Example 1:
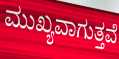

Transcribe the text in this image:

ಮುಖ್ಯವಾಗುತ್ತವೆ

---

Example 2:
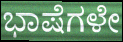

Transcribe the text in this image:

ಭಾಷೆಗಳೇ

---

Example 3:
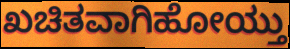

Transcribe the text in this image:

ಖಚಿತವಾಗಿಹೋಯ್ತು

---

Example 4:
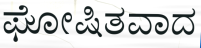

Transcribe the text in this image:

ಘೋಷಿತವಾದ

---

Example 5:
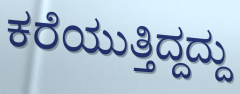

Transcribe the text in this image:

ಕರೆಯುತ್ತಿದ್ದದ್ದು